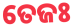
ତେଜଃ